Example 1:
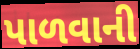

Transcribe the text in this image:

પાળવાની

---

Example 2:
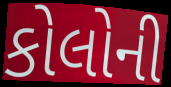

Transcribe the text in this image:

કોલોની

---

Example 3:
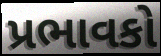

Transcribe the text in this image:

પ્રભાવકો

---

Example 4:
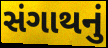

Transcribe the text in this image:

સંગાથનું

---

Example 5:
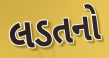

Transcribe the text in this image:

લડતનો